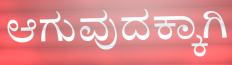
ಆಗುವುದಕ್ಕಾಗಿ